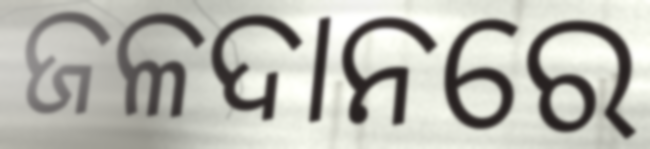
ଜଳଦାନରେ